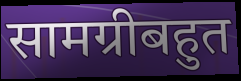
सामग्रीबहुत